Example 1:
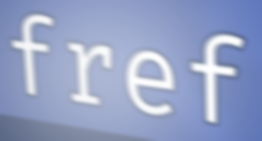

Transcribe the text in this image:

fref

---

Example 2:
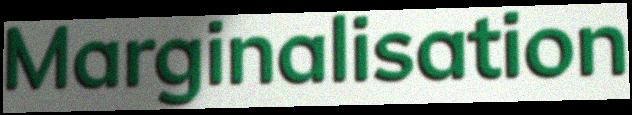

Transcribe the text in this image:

Marginalisation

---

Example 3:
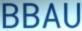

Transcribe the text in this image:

BBAU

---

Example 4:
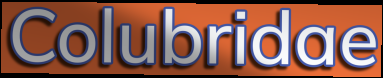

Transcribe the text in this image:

Colubridae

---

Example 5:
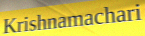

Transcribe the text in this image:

Krishnamachari